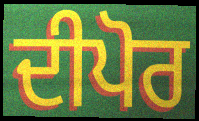
ਦੀਪੋਰ